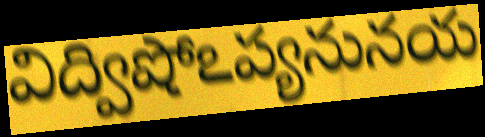
విద్విషోఽప్యనునయ